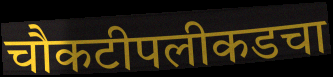
चौकटीपलीकडचा